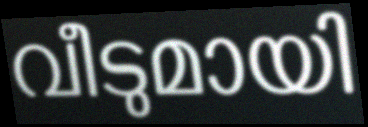
വീടുമായി